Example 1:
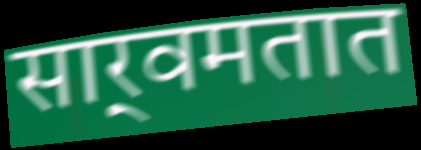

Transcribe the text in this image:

सार्वमतात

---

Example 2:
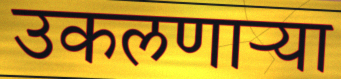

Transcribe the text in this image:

उकलणाऱ्या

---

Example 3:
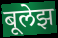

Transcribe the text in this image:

बूलेझ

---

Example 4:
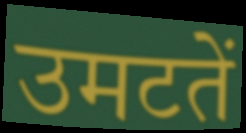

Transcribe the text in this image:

उमटतें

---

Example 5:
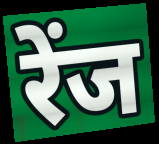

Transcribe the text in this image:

रेंज